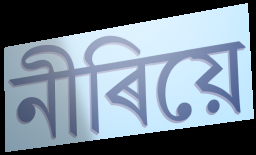
নীৰিয়ে